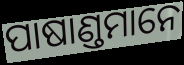
ପାଷାଣ୍ଡମାନେ